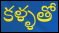
కళ్ళతో